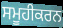
ਸਮੂਹੀਕਰਨ